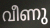
വീണു